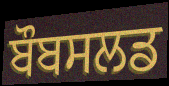
ਬੌਬਸਲਡ